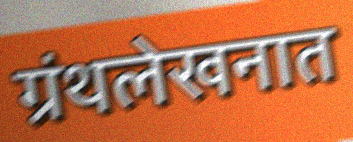
ग्रंथलेखनात